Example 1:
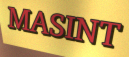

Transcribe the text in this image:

MASINT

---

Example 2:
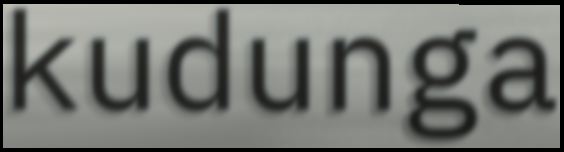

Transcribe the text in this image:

kudunga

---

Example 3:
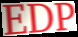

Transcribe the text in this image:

EDP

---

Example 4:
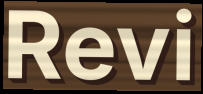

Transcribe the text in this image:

Revi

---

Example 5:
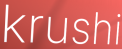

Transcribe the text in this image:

krushi